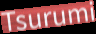
Tsurumi